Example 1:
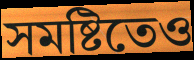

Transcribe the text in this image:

সমষ্টিতেও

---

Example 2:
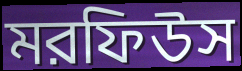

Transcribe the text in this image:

মরফিউস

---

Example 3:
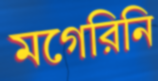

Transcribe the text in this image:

মগেরিনি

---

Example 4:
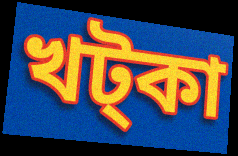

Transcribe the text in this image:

খট্কা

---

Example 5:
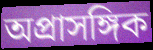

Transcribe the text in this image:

অপ্রাসঙ্গিক